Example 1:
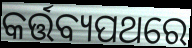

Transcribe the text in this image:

କର୍ତ୍ତବ୍ୟପଥରେ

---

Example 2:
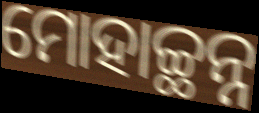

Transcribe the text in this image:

ମୋହାଚ୍ଛନ୍ନ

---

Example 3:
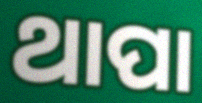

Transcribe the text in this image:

ଥାପା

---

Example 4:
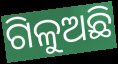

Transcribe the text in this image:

ଗିଳୁଅଛି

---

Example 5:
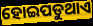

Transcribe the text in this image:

ହୋଇପଡୁଥାଏ